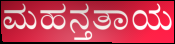
ಮಹನ್ತತಾಯ